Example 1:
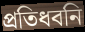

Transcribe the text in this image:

প্রতিধবনি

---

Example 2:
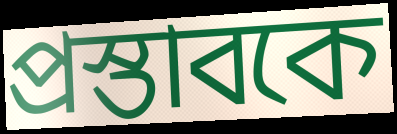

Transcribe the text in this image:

প্রস্তাবকে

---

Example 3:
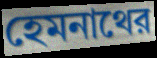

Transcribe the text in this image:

হেমনাথের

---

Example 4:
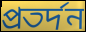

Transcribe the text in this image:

প্রতর্দন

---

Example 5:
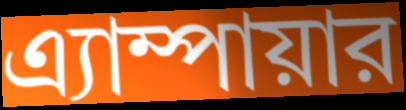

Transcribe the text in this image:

এ্যাম্পায়ার